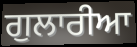
ਗੁਲਾਰੀਆ